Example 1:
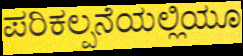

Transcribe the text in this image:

ಪರಿಕಲ್ಪನೆಯಲ್ಲಿಯೂ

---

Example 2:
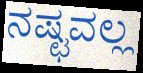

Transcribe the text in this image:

ನಷ್ಟವಲ್ಲ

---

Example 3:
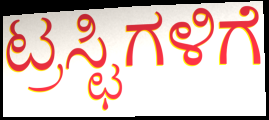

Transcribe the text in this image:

ಟ್ರಸ್ಟಿಗಳಿಗೆ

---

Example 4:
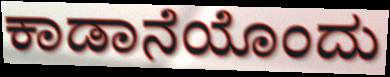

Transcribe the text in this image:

ಕಾಡಾನೆಯೊಂದು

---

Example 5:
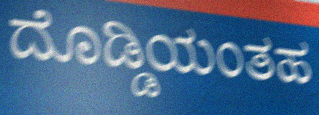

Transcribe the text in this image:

ದೊಡ್ಡಿಯಂತಹ